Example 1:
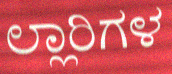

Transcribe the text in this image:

ಲ್ಲಾರಿಗಳ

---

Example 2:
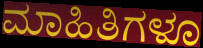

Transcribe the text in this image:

ಮಾಹಿತಿಗಳೂ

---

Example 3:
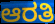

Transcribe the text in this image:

ಆರತಿ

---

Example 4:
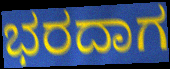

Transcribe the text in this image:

ಭರದಾಗ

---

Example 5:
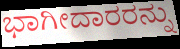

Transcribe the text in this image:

ಭಾಗೀದಾರರನ್ನು